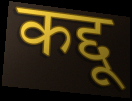
कद्दू